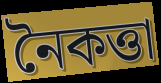
নৈকত্তা